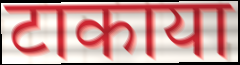
टाकाया